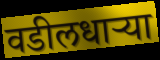
वडीलधाऱ्या